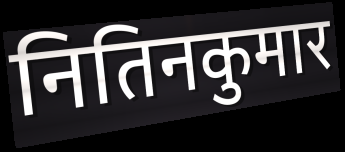
नितिनकुमार